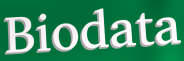
Biodata